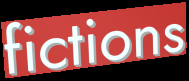
fictions